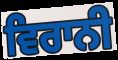
ਵਿਰਾਨੀ